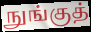
நுங்குத்